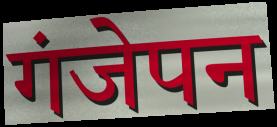
गंजेपन